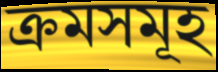
ক্ৰমসমূহ